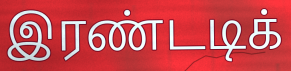
இரண்டடிக்